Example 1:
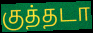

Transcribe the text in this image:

குத்தடா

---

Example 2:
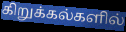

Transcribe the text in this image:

கிறுக்கல்களில்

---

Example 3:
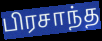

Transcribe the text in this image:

பிரசாந்த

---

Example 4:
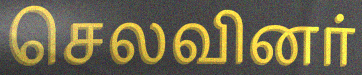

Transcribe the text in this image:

செலவினர்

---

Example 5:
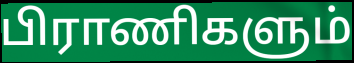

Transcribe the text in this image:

பிராணிகளும்